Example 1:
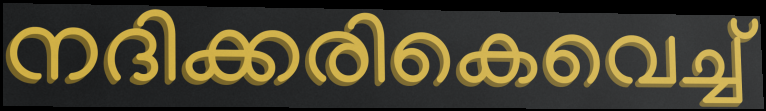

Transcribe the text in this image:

നദിക്കരികെവെച്ച്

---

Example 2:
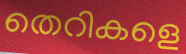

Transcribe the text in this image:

തെറികളെ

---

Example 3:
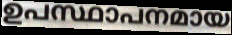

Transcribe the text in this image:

ഉപസ്ഥാപനമായ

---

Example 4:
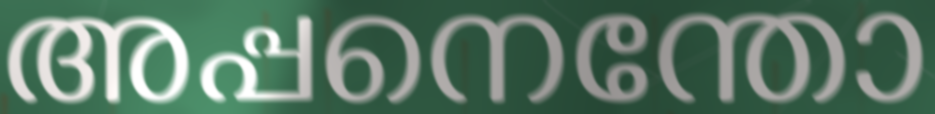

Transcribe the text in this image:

അപ്പനെന്തോ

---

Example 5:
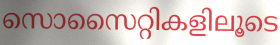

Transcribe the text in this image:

സൊസൈറ്റികളിലൂടെ